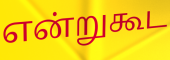
என்றுகூட